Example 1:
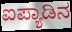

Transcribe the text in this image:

ಐಪ್ಯಾಡಿನ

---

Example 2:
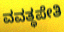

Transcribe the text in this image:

ವವತ್ಥಪೇತಿ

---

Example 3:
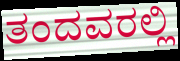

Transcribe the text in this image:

ತಂದವರಲ್ಲಿ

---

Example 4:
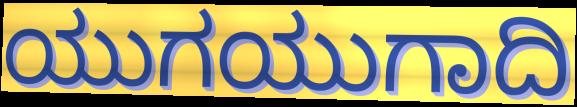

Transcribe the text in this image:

ಯುಗಯುಗಾದಿ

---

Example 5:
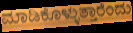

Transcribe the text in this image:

ಮಾಡಿಕೊಳ್ಳುತ್ತಾರೆಂದು